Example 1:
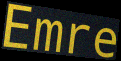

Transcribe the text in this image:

Emre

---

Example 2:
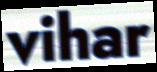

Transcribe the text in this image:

vihar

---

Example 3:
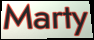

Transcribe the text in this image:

Marty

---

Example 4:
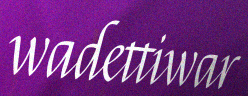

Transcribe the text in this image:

wadettiwar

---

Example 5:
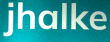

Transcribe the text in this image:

jhalke